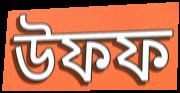
উফফ